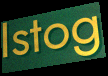
Istog